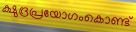
ക്ഷുദ്രപ്രയോഗംകൊണ്ട്